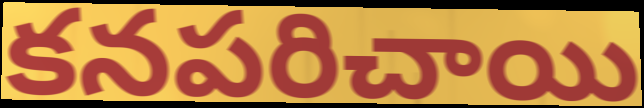
కనపరిచాయి